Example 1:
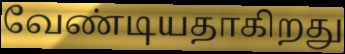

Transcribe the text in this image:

வேண்டியதாகிறது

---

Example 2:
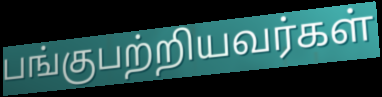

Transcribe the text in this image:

பங்குபற்றியவர்கள்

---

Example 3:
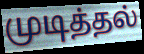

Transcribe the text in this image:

முடித்தல்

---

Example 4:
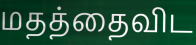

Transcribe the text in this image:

மதத்தைவிட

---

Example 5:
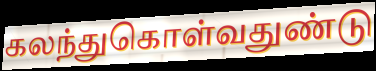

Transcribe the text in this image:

கலந்துகொள்வதுண்டு